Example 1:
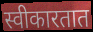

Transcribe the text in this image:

स्वीकारतात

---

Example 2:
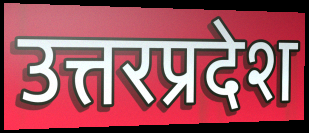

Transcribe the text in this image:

उत्तरप्रदेश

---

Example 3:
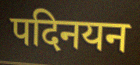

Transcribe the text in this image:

पदिनयन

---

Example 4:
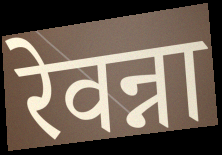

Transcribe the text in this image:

रेवन्ना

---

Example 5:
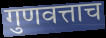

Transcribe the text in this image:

गुणवत्ताच